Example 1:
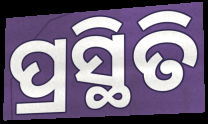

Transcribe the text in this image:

ପ୍ରସ୍ଥିତି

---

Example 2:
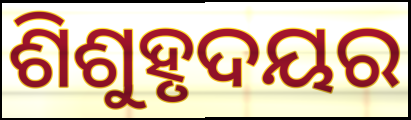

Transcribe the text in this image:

ଶିଶୁହୃଦୟର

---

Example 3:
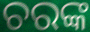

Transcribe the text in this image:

ଚରଙ୍କ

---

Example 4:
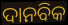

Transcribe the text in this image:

ଦାନବିକ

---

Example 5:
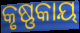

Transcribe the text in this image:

କୃଷ୍ଣକାୟ